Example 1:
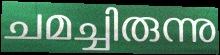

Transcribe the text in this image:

ചമച്ചിരുന്നു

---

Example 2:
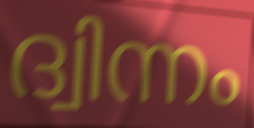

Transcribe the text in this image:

ദ്വിന്നം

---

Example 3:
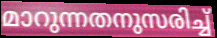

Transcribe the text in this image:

മാറുന്നതനുസരിച്ച്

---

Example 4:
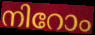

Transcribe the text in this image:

നിറോം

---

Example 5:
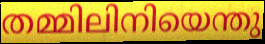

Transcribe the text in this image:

തമ്മിലിനിയെന്തു